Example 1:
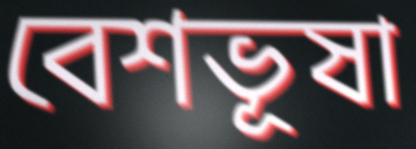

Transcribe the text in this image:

বেশভূষা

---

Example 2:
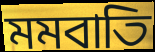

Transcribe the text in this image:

মমবাতি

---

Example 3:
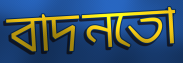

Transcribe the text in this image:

বাদনতো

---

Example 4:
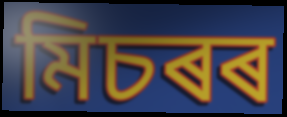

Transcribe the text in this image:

মিচৰৰ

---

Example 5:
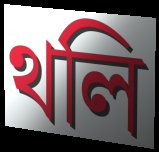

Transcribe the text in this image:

থলি